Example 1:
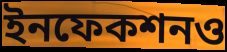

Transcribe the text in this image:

ইনফেকশনও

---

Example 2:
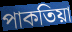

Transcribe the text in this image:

পাকতিয়া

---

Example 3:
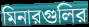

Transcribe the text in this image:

মিনারগুলির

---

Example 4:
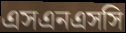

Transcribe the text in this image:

এসএনএসসি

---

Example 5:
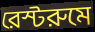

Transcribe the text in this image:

রেস্টরুমে